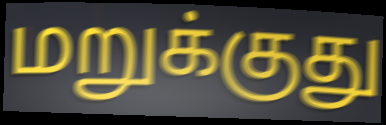
மறுக்குது